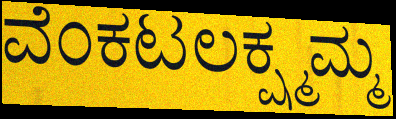
ವೆಂಕಟಲಕ್ಷ್ಮಮ್ಮ